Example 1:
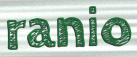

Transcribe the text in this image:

ranio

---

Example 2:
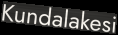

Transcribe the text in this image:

Kundalakesi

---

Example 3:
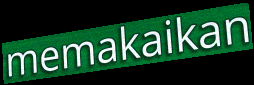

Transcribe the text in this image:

memakaikan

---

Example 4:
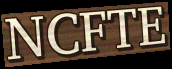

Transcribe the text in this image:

NCFTE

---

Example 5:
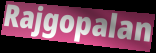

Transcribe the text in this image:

Rajgopalan